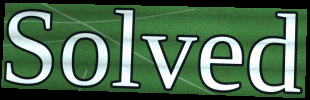
Solved